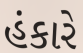
હંકારે